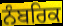
ਨੰਬਰਿਕ